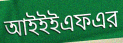
আইইইএফএর